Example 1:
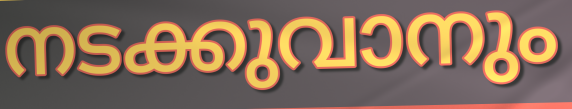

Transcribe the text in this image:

നടക്കുവാനും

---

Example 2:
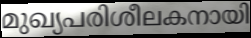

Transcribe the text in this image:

മുഖ്യപരിശീലകനായി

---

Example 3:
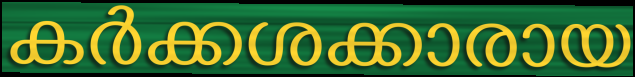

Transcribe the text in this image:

കർക്കശക്കാരായ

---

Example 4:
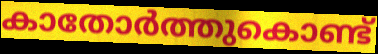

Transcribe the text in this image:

കാതോർത്തുകൊണ്ട്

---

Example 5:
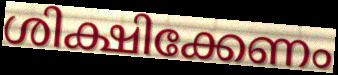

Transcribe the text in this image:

ശിക്ഷിക്കേണം